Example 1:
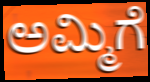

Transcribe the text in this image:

ಅಮ್ಮಿಗೆ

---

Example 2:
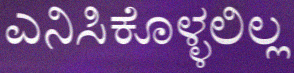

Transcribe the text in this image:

ಎನಿಸಿಕೊಳ್ಳಲಿಲ್ಲ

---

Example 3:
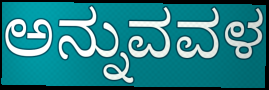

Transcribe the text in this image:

ಅನ್ನುವವಳ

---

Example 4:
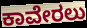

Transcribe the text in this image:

ಕಾವೇರಲು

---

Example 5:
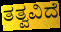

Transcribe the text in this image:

ತತ್ವವಿದೆ